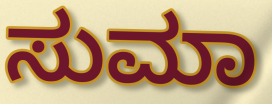
ಸುಮಾ